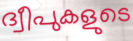
ദ്വീപുകളുടെ